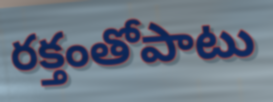
రక్తంతోపాటు